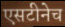
एसटीनेच